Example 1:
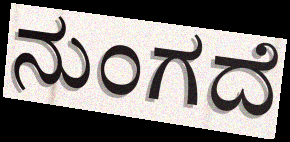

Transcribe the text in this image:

ನುಂಗದೆ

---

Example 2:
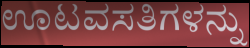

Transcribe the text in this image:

ಊಟವಸತಿಗಳನ್ನು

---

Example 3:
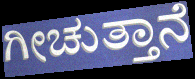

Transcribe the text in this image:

ಗೀಚುತ್ತಾನೆ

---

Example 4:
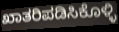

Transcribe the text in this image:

ಖಾತರಿಪಡಿಸಿಕೊಳ್ಳಿ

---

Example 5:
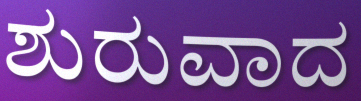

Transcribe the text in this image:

ಶುರುವಾದ